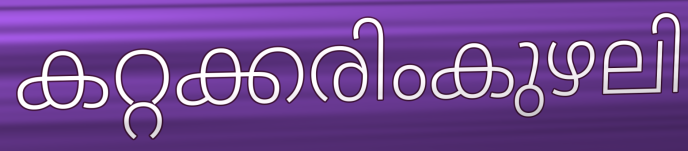
കറ്റക്കരിംകുഴലി